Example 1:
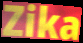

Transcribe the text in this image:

Zika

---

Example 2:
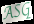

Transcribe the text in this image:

ASG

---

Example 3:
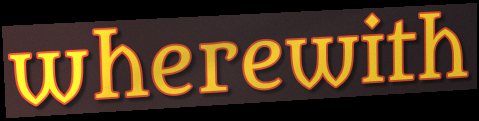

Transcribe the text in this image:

wherewith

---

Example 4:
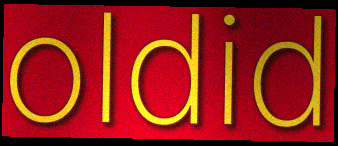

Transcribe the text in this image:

oldid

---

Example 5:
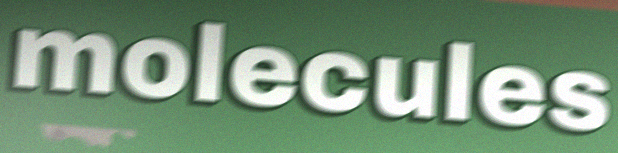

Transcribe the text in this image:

molecules